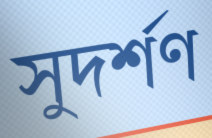
সুদর্শণ